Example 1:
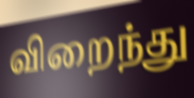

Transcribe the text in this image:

விறைந்து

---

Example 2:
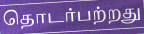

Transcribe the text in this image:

தொடர்பற்றது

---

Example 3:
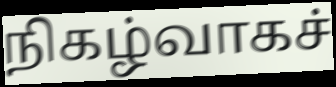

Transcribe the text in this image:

நிகழ்வாகச்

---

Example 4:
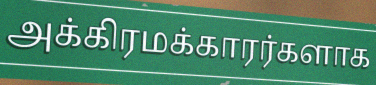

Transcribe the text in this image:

அக்கிரமக்காரர்களாக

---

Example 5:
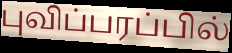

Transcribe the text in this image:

புவிப்பரப்பில்